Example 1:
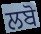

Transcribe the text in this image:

ਲਬੋ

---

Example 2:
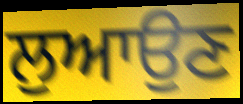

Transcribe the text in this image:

ਲੁਆਉਣ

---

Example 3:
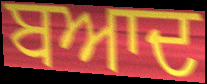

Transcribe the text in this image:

ਬਆਦ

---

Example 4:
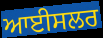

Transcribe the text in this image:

ਆਈਸਲਰ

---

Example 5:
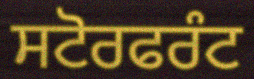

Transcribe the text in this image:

ਸਟੋਰਫਰੰਟ